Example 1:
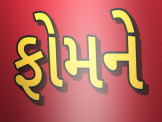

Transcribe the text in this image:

ફોમને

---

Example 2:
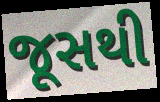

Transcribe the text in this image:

જૂસથી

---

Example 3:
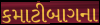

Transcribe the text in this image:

કમાટીબાગના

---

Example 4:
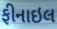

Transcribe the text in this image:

ફીનાઇલ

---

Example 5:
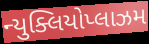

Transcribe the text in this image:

ન્યુક્લિયોપ્લાઝમ